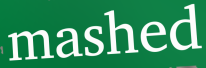
mashed